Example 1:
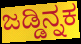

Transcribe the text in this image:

ಜಡ್ಡಿನ್ನಕ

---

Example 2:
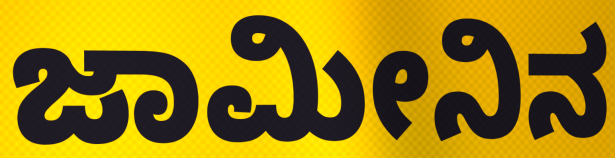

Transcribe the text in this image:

ಜಾಮೀನಿನ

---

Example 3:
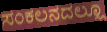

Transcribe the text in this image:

ಸಂಕಲನದಲ್ಲೂ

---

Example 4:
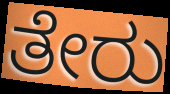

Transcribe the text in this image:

ತೇರು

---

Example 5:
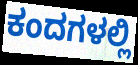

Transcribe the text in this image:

ಕಂದಗಳಲ್ಲಿ